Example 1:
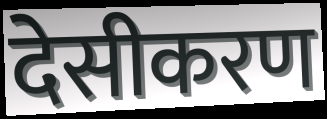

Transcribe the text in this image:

देसीकरण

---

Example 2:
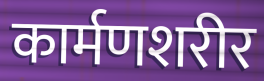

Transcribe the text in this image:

कार्मणशरीर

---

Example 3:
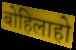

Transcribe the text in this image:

बोहिलाहो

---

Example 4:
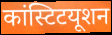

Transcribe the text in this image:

कांस्टिटयूशन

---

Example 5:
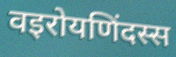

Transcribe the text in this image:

वइरोयणिंदस्स